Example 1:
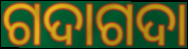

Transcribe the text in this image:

ଗଦାଗଦା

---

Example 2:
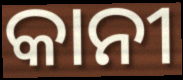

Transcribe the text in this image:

କାନୀ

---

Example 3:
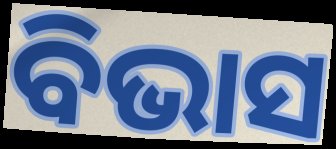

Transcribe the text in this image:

ବିଭାସ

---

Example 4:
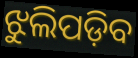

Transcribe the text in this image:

ଝୁଲିପଡ଼ିବ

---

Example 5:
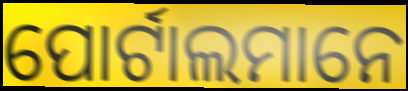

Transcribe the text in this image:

ପୋର୍ଟାଲମାନେ